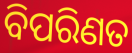
ବିପରିଣତ